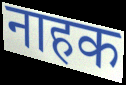
नाहक